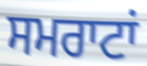
ਸਮਰਾਟਾਂ